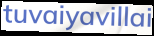
tuvaiyavillai